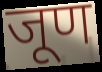
जूण